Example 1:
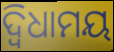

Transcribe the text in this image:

ଦ୍ୱିଧାମୟ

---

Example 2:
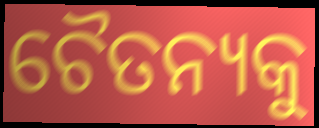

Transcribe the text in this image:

ଚୈତନ୍ୟକୁ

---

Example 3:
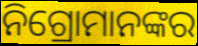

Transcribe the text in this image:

ନିଗ୍ରୋମାନଙ୍କର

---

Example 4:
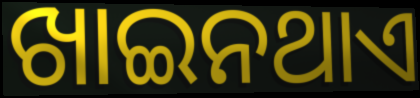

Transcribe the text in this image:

ଖାଇନଥାଏ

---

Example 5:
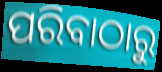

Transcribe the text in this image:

ପରିବାଠାରୁ